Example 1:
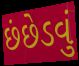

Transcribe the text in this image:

છંછેડવું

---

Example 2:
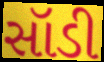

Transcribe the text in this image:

સૉડી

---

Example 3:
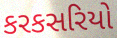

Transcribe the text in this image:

કરકસરિયો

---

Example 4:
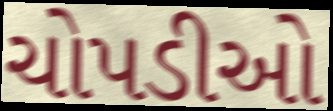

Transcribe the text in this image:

ચોપડીઓ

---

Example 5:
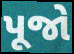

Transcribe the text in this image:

પૂજો